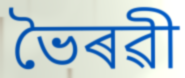
ভৈৰৱী